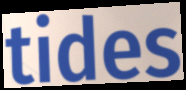
tides